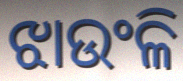
ଝାଉଂଳି